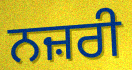
ਨਜ਼ਰੀ